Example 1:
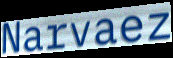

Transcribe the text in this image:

Narvaez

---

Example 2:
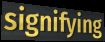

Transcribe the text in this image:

signifying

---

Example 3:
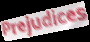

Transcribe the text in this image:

Prejudices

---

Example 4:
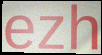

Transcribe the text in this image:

ezh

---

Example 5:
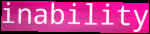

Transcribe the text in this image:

inability